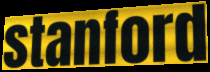
stanford